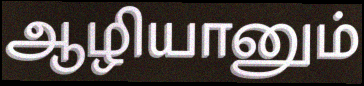
ஆழியானும்